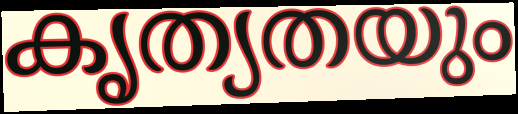
കൃത്യതയും